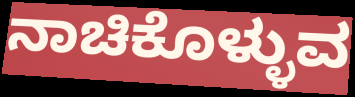
ನಾಚಿಕೊಳ್ಳುವ